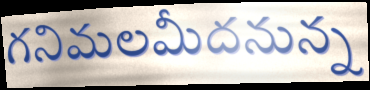
గనిమలమీదనున్న